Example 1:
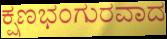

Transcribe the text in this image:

ಕ್ಷಣಭಂಗುರವಾದ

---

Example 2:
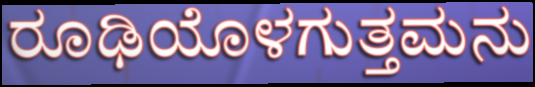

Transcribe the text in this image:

ರೂಢಿಯೊಳಗುತ್ತಮನು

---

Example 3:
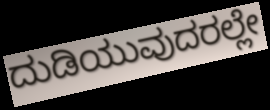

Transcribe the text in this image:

ದುಡಿಯುವುದರಲ್ಲೇ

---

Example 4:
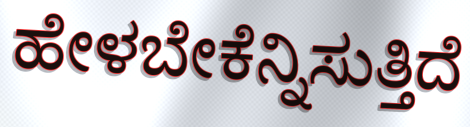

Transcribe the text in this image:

ಹೇಳಬೇಕೆನ್ನಿಸುತ್ತಿದೆ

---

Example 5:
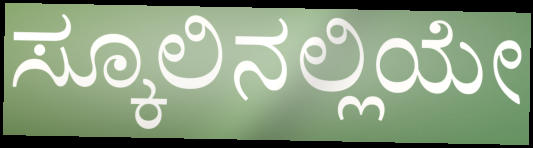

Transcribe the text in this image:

ಸ್ಕೂಲಿನಲ್ಲಿಯೇ